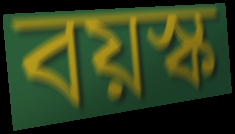
বয়স্ক